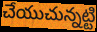
చేయుచున్నట్టి